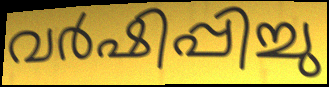
വർഷിപ്പിച്ചു